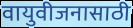
वायुवीजनासाठी